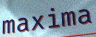
maxima